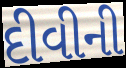
દીવીની